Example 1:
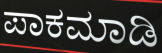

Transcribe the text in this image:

ಪಾಕಮಾಡಿ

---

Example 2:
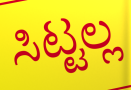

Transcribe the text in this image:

ಸಿಟ್ಟಲ್ಲ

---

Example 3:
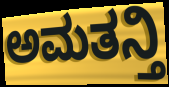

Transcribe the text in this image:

ಅಮತನ್ತಿ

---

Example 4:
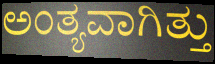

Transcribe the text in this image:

ಅಂತ್ಯವಾಗಿತ್ತು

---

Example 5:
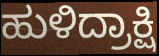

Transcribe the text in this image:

ಹುಳಿದ್ರಾಕ್ಷಿ